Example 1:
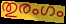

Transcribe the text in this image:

തുരംഗം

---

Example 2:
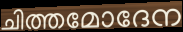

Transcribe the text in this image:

ചിത്തമോദേന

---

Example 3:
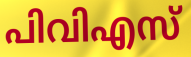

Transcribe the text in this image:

പിവിഎസ്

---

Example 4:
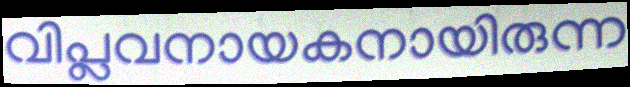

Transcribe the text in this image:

വിപ്ലവനായകനായിരുന്ന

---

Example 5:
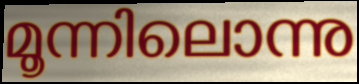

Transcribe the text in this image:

മൂന്നിലൊന്നു